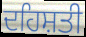
ਦਹਿਸ਼ਤੀ